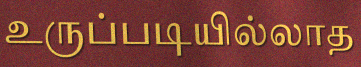
உருப்படியில்லாத